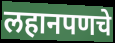
लहानपणचे